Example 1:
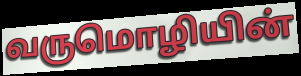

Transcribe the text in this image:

வருமொழியின்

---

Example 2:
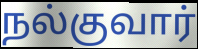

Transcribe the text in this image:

நல்குவார்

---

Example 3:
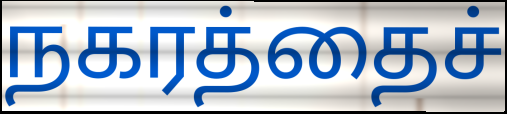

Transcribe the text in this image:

நகரத்தைச்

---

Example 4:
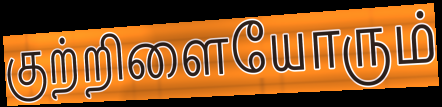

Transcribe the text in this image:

குற்றிளையோரும்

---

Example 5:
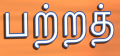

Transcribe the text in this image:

பற்றத்